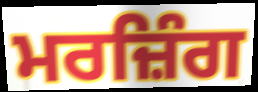
ਮਰਜ਼ਿੰਗ